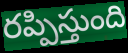
రప్పిస్తుంది